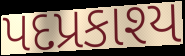
પદપ્રકાશ્ય